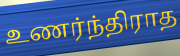
உணர்ந்திராத